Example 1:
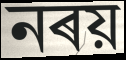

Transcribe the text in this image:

নৰয়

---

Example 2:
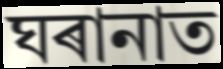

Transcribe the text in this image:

ঘৰানাত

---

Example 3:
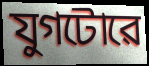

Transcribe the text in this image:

যুগটোৱে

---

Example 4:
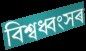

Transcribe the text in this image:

বিশ্বধ্বংসৰ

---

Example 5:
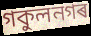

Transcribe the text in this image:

গকুলনগৰ